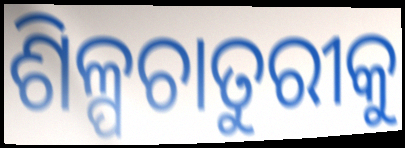
ଶିଳ୍ପଚାତୁରୀକୁ